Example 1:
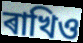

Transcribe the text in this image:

ৰাখিও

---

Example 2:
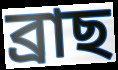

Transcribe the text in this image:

ব্ৰাছ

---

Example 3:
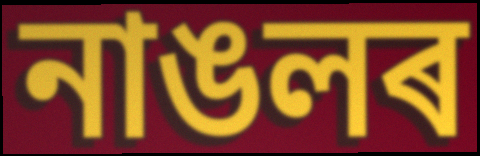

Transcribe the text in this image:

নাঙলৰ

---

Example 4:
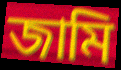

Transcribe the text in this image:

জামি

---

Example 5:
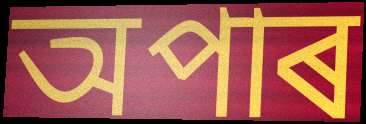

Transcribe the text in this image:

অপাৰ